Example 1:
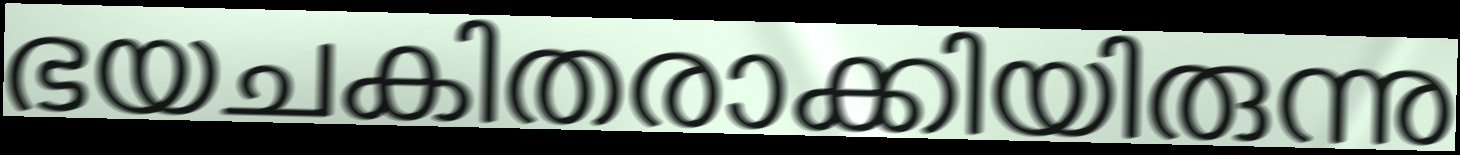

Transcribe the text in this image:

ഭയചകിതരാക്കിയിരുന്നു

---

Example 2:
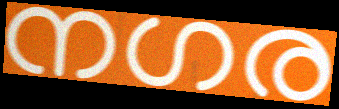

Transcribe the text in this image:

നഗര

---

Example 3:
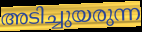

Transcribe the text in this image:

അടിച്ചുയരുന്ന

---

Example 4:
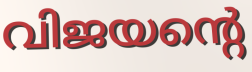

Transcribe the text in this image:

വിജയന്റെ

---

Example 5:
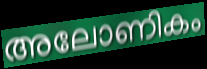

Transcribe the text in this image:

അലോണികം